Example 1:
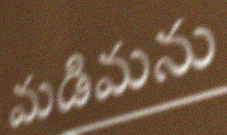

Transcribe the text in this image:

మడిమను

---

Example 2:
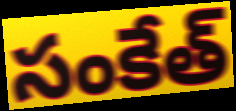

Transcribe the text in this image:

సంకేత్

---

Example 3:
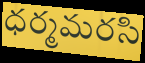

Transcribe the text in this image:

ధర్మమరసి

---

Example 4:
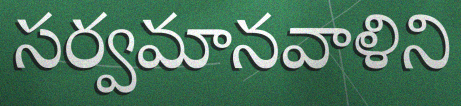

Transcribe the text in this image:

సర్వమానవాళిని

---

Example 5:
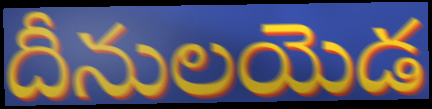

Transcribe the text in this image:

దీనులయెడ